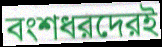
বংশধরদেরই